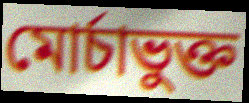
মোর্চাভুক্ত